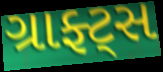
ગ્રાફ્ટ્સ